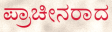
ಪ್ರಾಚೀನರಾದ